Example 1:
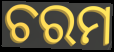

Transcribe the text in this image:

ଚରମ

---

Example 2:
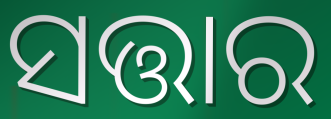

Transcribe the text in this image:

ସତ୍ତାର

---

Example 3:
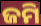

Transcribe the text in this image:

ଜମି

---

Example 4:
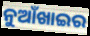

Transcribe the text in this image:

ନୁଆଁଖାଇର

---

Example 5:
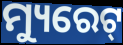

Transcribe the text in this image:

ମ୍ୟୁରେଟ୍